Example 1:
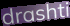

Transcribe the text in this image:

drashti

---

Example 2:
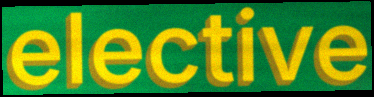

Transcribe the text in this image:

elective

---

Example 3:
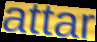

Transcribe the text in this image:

attar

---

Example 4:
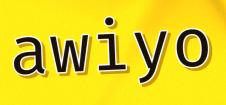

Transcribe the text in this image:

awiyo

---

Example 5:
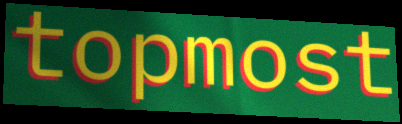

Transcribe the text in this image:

topmost